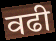
वढी